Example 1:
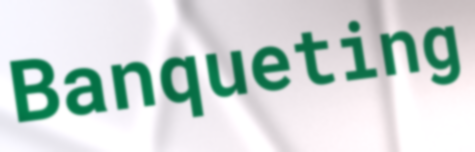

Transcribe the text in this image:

Banqueting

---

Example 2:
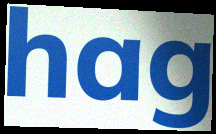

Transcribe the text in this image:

hag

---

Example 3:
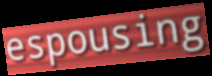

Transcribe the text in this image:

espousing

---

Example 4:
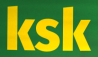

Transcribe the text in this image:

ksk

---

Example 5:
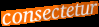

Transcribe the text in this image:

consectetur